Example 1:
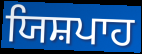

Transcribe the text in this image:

ਯਿਸ਼ਪਾਹ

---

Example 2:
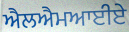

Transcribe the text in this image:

ਐਲਐਮਆਈਏ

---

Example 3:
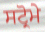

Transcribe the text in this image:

ਸਟ੍ਰੋਮੇ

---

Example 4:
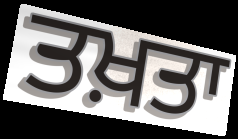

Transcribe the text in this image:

ਤਖ਼ਤਾ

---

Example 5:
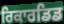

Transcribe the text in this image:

ਰਿਕਾਰਡਿਡ